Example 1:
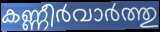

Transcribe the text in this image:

കണ്ണീർവാർത്തു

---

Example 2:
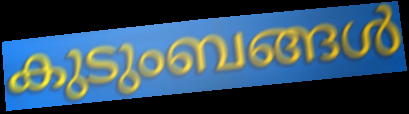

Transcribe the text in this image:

കുടുംബങ്ങൾ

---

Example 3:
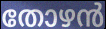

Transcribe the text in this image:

തോഴൻ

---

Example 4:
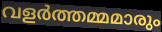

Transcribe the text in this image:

വളർത്തമ്മമാരും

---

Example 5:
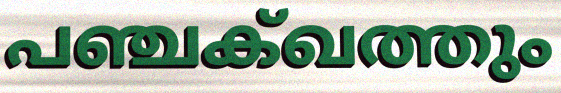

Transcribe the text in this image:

പഞ്ചക്ഖത്തും